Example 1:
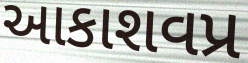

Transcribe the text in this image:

આકાશવપ્ર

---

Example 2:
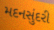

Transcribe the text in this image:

મદનસુંદરી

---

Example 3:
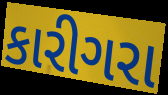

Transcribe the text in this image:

કારીગરા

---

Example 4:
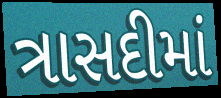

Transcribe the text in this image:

ત્રાસદીમાં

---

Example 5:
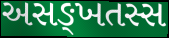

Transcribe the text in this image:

અસઙ્ખતસ્સ